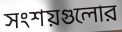
সংশয়গুলোর